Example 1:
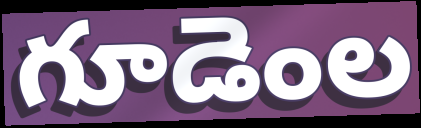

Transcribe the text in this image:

గూడెంల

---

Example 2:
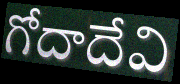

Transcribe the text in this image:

గోదాదేవి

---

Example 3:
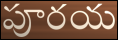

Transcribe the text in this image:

పూరయ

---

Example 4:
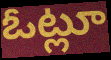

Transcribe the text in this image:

ఓట్లూ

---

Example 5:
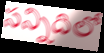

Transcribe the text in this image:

సన్నిదిలో